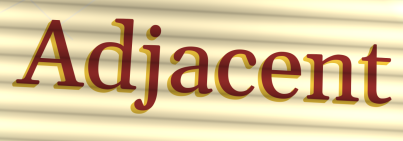
Adjacent